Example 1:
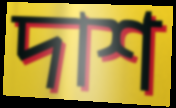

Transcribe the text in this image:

দাশ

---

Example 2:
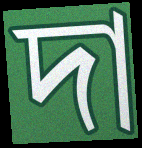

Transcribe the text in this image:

দা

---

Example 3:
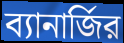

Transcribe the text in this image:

ব্যানার্জির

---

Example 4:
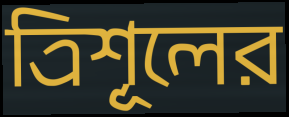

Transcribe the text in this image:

ত্রিশূলের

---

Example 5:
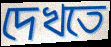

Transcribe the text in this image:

দেখতে